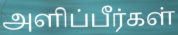
அளிப்பீர்கள்